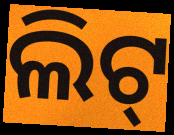
ଲିଟ୍